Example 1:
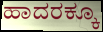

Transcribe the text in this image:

ಹಾದರಕ್ಕೂ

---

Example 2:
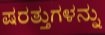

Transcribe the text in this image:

ಷರತ್ತುಗಳನ್ನು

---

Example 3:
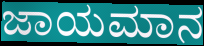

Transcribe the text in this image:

ಜಾಯಮಾನ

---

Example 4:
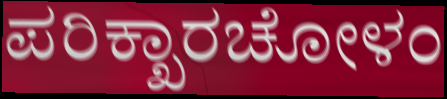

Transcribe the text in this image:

ಪರಿಕ್ಖಾರಚೋಳಂ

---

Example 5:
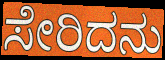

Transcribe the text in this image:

ಸೇರಿದನು